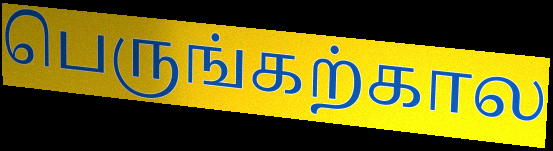
பெருங்கற்கால